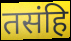
तसंहि